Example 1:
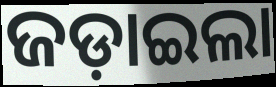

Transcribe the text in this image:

ଜଡ଼ାଇଲା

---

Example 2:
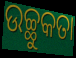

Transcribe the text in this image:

ଉଚ୍ଛୁକତା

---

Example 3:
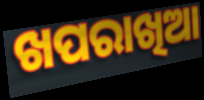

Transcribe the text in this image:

ଖପରାଖିଆ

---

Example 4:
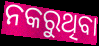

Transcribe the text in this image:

ନକରୁଥିବା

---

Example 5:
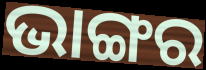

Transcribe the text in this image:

ଭାଙ୍ଗର